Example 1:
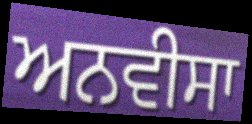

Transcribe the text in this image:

ਅਨਵੀਸਾ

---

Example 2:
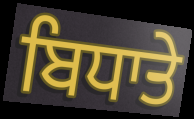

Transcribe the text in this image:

ਬਿਧਾਤੇ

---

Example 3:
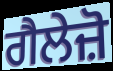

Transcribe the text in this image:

ਗੈਲੇਜ਼ੋ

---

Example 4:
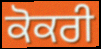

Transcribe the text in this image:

ਕੋਕਰੀ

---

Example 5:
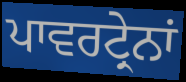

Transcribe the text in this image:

ਪਾਵਰਟ੍ਰੇਨਾਂ